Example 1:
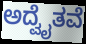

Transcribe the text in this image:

ಅದ್ವೈತವೆ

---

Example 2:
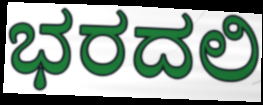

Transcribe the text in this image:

ಭರದಲಿ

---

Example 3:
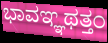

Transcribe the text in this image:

ಭಾವಞ್ಞಥತ್ತಂ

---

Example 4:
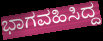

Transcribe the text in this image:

ಭಾಗವಹಿಸಿದ್ದ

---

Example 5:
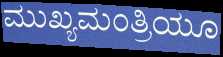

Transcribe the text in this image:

ಮುಖ್ಯಮಂತ್ರಿಯೂ